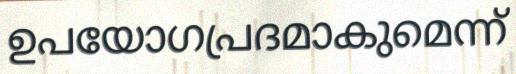
ഉപയോഗപ്രദമാകുമെന്ന്